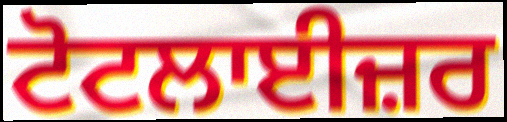
ਟੋਟਲਾਈਜ਼ਰ